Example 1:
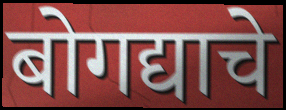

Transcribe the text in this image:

बोगद्याचे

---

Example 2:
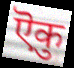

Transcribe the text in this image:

ऎकु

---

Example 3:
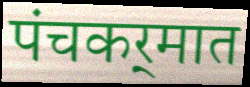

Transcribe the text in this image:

पंचकर्मात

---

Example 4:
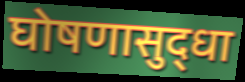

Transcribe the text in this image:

घोषणासुद्धा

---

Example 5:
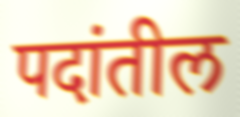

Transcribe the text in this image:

पदांतील